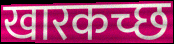
खारकच्छ